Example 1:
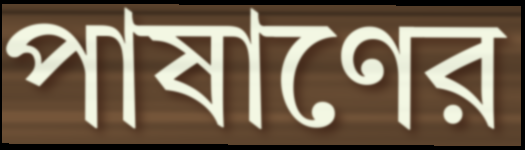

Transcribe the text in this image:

পাষাণের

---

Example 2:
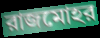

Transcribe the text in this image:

রাজমোহর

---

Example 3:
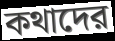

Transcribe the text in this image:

কথাদের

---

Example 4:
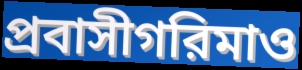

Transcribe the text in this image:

প্রবাসীগরিমাও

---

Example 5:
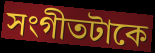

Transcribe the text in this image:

সংগীতটাকে